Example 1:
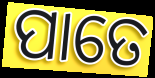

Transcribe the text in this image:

ପାତେ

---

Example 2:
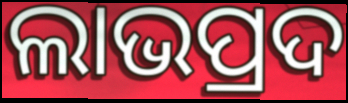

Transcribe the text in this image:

ଲାଭପ୍ରଦ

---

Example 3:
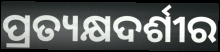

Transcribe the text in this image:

ପ୍ରତ୍ୟକ୍ଷଦର୍ଶୀର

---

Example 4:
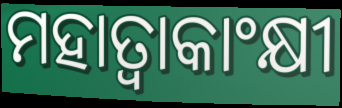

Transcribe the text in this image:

ମହାତ୍ୱାକାଂକ୍ଷୀ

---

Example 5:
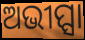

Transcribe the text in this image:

ଅଭୀପ୍ସା